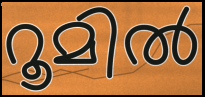
റൂമിൽ